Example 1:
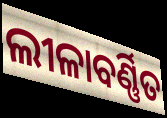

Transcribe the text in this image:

ଲୀଳାବର୍ଣ୍ଣିତ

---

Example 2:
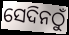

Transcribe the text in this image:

ସେଦିନଠୁଁ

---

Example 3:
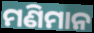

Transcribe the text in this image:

ମଣିମାନ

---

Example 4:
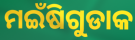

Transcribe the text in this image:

ମଇଁଷିଗୁଡାକ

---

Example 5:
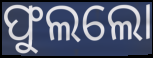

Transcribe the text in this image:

ଫୁଲଲୋ